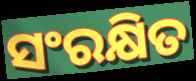
ସଂରକ୍ଷିତ